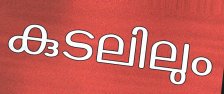
കുടലിലും